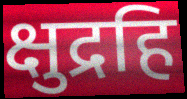
क्षुद्रहि